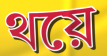
থয়ে